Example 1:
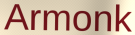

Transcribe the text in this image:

Armonk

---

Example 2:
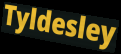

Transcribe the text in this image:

Tyldesley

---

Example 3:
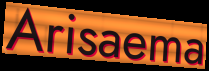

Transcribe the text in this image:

Arisaema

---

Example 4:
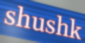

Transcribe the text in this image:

shushk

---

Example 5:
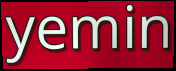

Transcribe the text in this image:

yemin